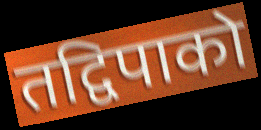
तद्विपाको